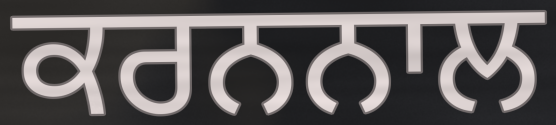
ਕਰਨਨਾਲ